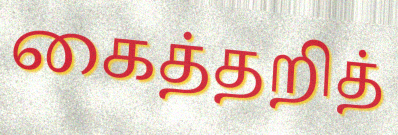
கைத்தறித்